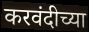
करवंदीच्या